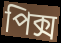
পিক্স